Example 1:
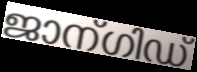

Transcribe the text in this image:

ജാന്ഗിഡ്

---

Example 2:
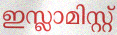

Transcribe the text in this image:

ഇസ്ലാമിസ്റ്റ്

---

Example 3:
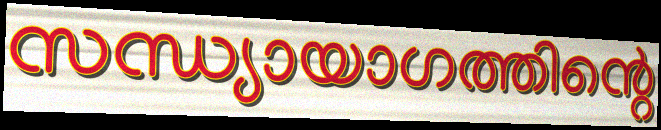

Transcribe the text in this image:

സന്ധ്യായാഗത്തിന്റെ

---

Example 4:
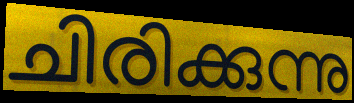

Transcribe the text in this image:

ചിരിക്കുന്നു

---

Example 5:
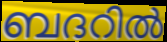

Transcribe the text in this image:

ബദറിൽ